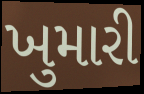
ખુમારી